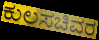
ಕುಲಸಚಿವರ